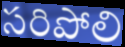
సరిపోలి